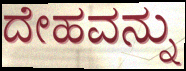
ದೇಹವನ್ನು